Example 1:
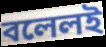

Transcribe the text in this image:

বলেলই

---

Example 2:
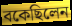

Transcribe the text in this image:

বকেছিলেন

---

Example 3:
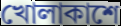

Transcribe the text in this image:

খোলাকাশে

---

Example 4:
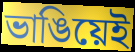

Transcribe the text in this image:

ভাঙিয়েই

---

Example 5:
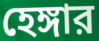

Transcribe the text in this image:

হেঙ্গার